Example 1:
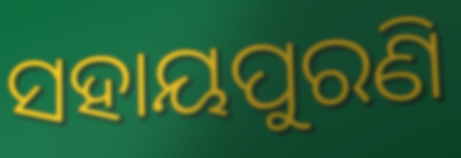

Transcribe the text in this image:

ସହାୟପୁରଣି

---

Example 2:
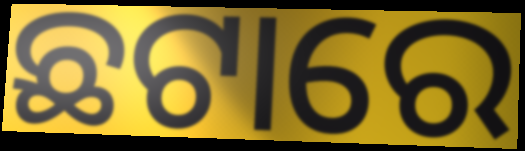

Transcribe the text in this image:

ଛଟାରେ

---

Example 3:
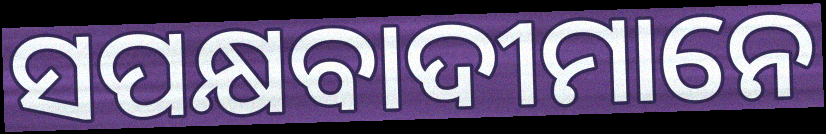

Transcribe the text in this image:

ସପକ୍ଷବାଦୀମାନେ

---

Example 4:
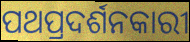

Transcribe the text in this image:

ପଥପ୍ରଦର୍ଶନକାରୀ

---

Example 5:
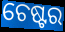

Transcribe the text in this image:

ଚେଷ୍ଟର